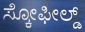
ಸ್ಕೋಫೀಲ್ಡ್